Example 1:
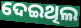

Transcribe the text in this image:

ଦେଇଥିଲ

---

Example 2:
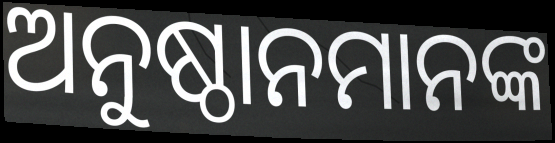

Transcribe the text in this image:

ଅନୁଷ୍ଠାନମାନଙ୍କ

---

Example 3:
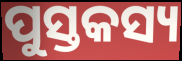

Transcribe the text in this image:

ପୁସ୍ତକସ୍ୟ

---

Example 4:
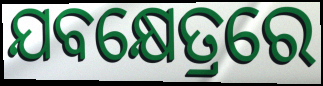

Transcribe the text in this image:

ଯବକ୍ଷେତ୍ରରେ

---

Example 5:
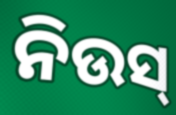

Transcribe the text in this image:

ନିଉସ୍